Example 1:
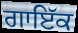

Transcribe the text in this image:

ਗਾਇੱਕ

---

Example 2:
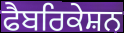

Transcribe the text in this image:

ਫੈਬਰਿਕੇਸ਼ਨ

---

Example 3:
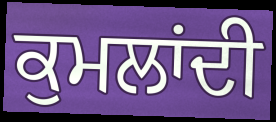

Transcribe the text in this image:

ਕੁਮਲਾਂਦੀ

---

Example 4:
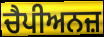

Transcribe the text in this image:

ਚੈਪੀਅਨਜ਼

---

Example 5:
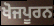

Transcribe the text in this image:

ਖੋਜਪੂਰਨ